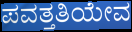
ಪವತ್ತತಿಯೇವ